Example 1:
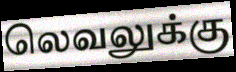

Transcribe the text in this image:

லெவலுக்கு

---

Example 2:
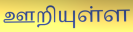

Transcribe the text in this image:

ஊறியுள்ள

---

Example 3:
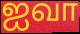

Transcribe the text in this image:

ஐவா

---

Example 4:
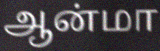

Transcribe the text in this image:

ஆன்மா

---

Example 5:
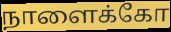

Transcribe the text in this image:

நாளைக்கோ